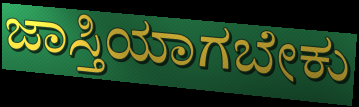
ಜಾಸ್ತಿಯಾಗಬೇಕು